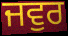
ਜਵੁਰ